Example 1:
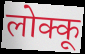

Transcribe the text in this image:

लोक्कू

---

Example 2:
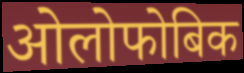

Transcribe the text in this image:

ओलोफोबिक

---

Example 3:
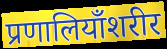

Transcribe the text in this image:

प्रणालियाँशरीर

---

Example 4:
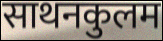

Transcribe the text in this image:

साथनकुलम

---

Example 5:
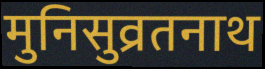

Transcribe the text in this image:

मुनिसुव्रतनाथ